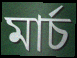
মাৰ্চ